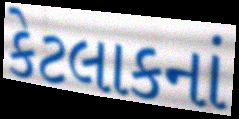
કેટલાકનાં